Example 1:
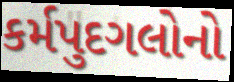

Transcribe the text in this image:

કર્મપુદગલોનો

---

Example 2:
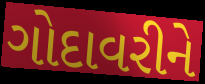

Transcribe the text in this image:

ગોદાવરીને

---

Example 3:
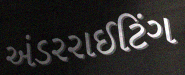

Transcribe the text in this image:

અંડરરાઈટિંગ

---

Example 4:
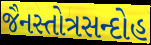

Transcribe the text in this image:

જૈનસ્તોત્રસન્દોહ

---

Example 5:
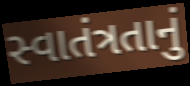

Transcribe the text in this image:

સ્વાતંત્રતાનું